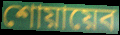
শোয়ায়েব